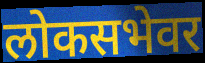
लोकसभेवर